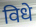
विधे